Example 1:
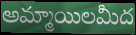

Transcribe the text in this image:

అమ్మాయిలమీద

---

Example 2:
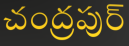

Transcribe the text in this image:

చంద్రపుర్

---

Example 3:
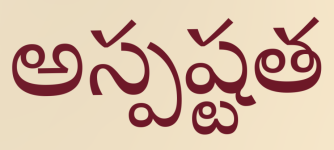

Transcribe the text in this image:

అస్పష్టత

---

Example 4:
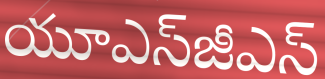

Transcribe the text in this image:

యూఎస్‌జీఎస్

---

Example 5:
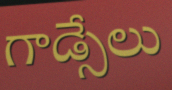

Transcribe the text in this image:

గాడ్సేలు